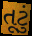
તૂટું